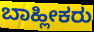
ಬಾಹ್ಲೀಕರು